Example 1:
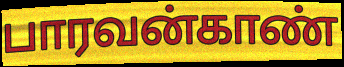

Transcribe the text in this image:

பாரவன்காண்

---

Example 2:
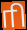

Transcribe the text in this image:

ரி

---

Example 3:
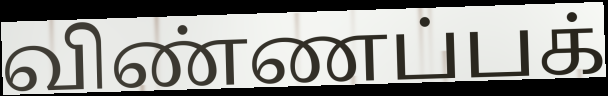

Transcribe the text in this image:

விண்ணப்பக்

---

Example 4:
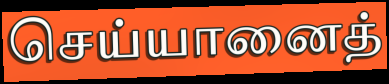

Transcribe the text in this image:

செய்யானைத்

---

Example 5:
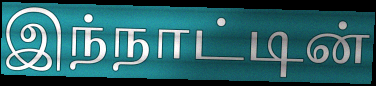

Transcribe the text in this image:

இந்நாட்டின்